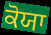
ਕੋਯਾ